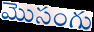
మొసంగు